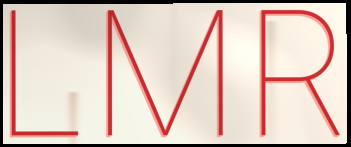
LMR